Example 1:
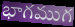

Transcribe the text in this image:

భాగముగ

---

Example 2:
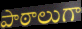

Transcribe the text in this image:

పాఠాలుగా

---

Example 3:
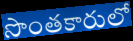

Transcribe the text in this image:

సొంతకారులో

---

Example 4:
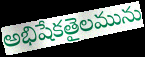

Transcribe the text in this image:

అభిషేకతైలమును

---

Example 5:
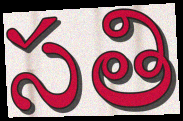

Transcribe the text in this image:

సతి